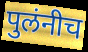
पुलंनीच